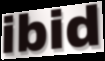
ibid